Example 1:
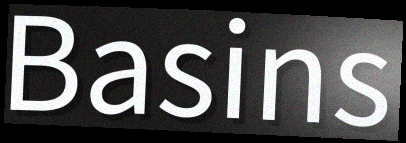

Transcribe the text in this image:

Basins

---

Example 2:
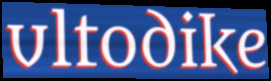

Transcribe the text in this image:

ultodike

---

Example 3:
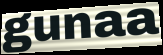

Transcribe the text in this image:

gunaa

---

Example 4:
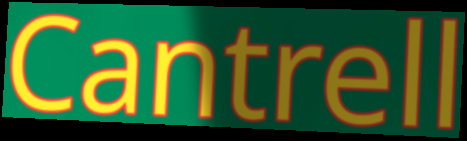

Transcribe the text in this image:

Cantrell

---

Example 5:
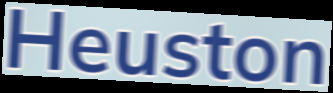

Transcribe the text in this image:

Heuston